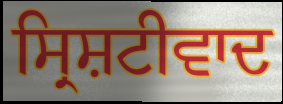
ਸ੍ਰਿਸ਼ਟੀਵਾਦ